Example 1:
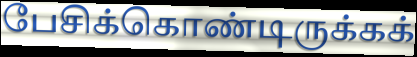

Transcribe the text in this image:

பேசிக்கொண்டிருக்கக்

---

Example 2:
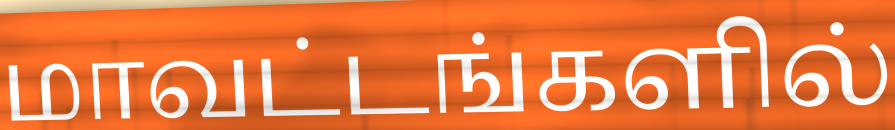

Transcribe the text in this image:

மாவட்டங்களில்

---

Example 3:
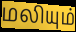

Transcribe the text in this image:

மலியும்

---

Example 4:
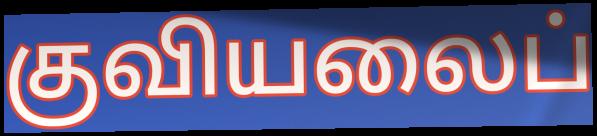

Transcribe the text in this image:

குவியலைப்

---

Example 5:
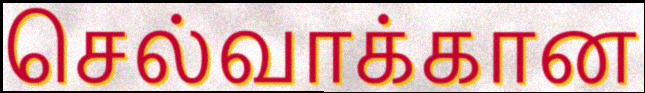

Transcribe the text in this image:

செல்வாக்கான